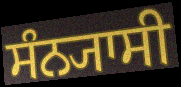
ਸੰਨ੍ਯਾਸੀ